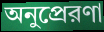
অনুপ্রেরণা